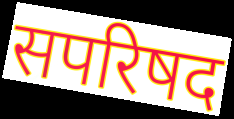
सपरिषद